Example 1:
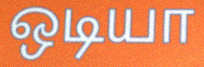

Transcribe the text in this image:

ஒடியா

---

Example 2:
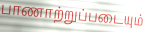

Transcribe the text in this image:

பாணாற்றுப்படையும்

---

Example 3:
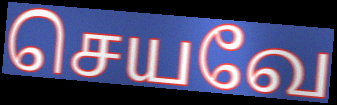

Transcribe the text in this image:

செயவே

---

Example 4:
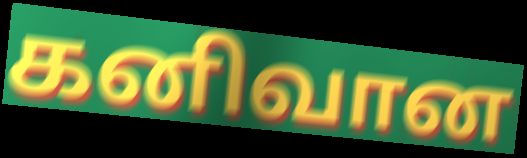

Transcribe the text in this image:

கனிவான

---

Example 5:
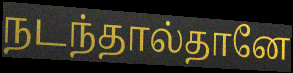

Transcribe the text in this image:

நடந்தால்தானே